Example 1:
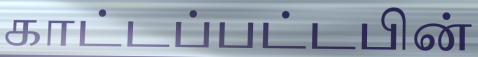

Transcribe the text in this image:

காட்டப்பட்டபின்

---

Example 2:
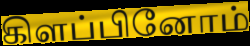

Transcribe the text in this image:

கிளப்பினோம்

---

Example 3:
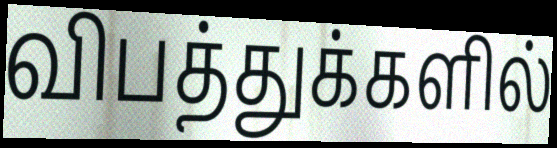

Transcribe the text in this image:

விபத்துக்களில்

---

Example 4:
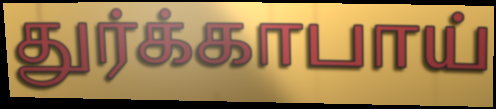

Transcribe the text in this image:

துர்க்காபாய்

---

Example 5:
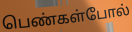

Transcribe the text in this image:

பெண்கள்போல்